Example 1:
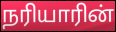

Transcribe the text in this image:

நரியாரின்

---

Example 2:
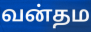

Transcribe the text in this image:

வன்தம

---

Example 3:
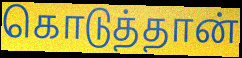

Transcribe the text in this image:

கொடுத்தான்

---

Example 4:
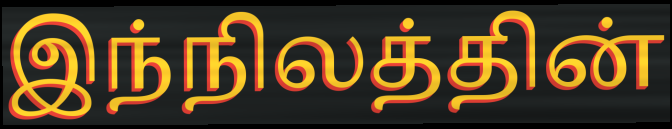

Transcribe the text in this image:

இந்நிலத்தின்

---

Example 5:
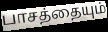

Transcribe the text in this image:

பாசத்தையும்